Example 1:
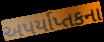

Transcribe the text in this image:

અપર્યાપ્તકના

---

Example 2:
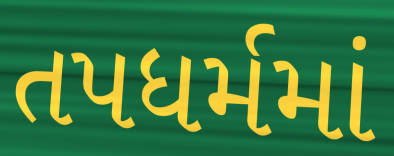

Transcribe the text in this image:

તપધર્મમાં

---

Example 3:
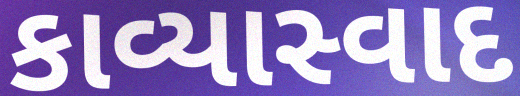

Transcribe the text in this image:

કાવ્યાસ્વાદ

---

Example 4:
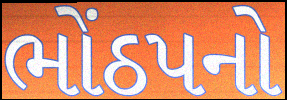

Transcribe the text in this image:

ભોંઠપનો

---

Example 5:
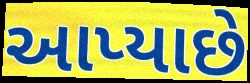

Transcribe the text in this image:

આપ્યાછે